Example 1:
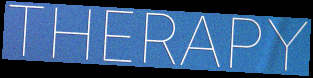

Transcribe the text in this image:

THERAPY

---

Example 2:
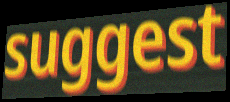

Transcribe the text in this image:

suggest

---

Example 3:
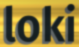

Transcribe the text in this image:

loki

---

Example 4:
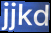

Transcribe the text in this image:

jjkd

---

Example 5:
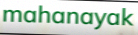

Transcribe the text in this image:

mahanayak